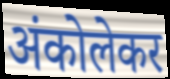
अंकोलेकर